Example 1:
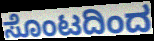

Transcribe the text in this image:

ಸೊಂಟದಿಂದ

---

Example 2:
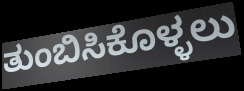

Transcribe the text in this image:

ತುಂಬಿಸಿಕೊಳ್ಳಲು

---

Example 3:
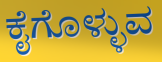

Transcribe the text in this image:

ಕೈಗೊಳ್ಳುವ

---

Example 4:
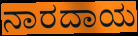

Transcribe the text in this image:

ನಾರದಾಯ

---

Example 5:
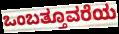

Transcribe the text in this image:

ಒಂಬತ್ತೂವರೆಯ